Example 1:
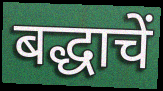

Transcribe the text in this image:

बद्धाचें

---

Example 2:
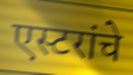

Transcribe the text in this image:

एस्टरांचे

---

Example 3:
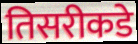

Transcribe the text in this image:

तिसरीकडे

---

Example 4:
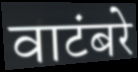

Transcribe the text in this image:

वाटंबरे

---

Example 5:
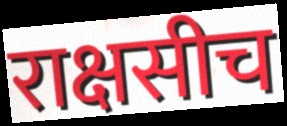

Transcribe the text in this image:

राक्षसीच